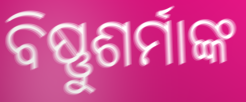
ବିଷ୍ଣୁଶର୍ମାଙ୍କ